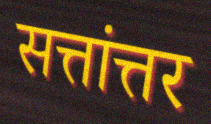
सत्तांत्तर